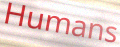
Humans